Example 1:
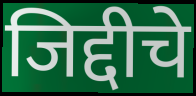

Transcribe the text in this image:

जिद्दीचे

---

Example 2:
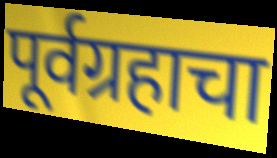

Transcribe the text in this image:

पूर्वग्रहाचा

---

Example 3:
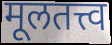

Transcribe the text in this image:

मूलतत्त्व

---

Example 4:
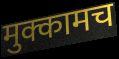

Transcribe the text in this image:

मुक्कामच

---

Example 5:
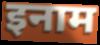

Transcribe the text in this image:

इनाम